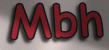
Mbh